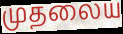
முதலைய